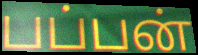
பப்பன்